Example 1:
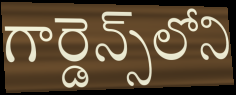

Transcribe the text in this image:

గార్డెన్స్‌లోని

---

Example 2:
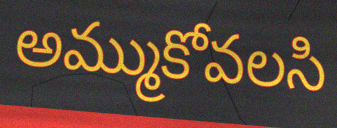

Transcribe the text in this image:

అమ్ముకోవలసి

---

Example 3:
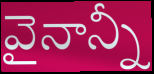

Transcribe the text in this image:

వైనాన్నీ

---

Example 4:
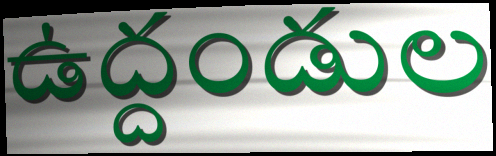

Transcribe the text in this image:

ఉద్దండుల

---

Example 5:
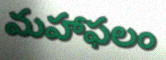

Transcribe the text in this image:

మహాఫలం